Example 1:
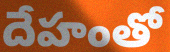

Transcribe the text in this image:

దేహంతో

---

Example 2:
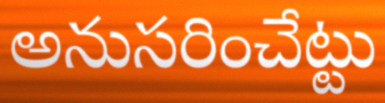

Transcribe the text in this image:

అనుసరించేట్టు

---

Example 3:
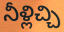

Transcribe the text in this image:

నీళ్లిచ్చి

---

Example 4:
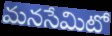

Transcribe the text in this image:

మనసేమిటో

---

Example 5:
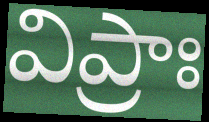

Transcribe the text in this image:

విప్రాః